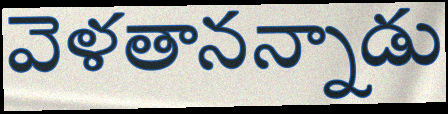
వెళతానన్నాడు